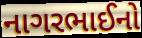
નાગરભાઈનો